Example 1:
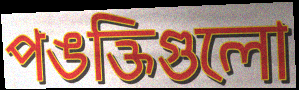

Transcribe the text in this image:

পঙক্তিগুলো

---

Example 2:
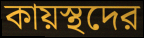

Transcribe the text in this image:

কায়স্থদের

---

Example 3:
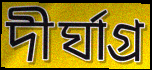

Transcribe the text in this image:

দীর্ঘাগ্র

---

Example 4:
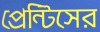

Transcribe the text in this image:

প্রেন্টিসের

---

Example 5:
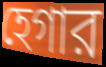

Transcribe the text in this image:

হেগার